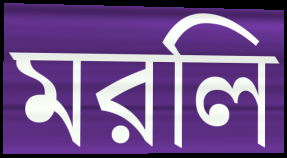
মরলি